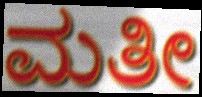
ಮತೀ